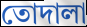
তোদালা